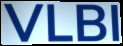
VLBI